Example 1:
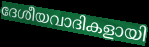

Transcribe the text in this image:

ദേശീയവാദികളായി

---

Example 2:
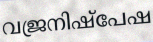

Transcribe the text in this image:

വജ്രനിഷ്പേഷ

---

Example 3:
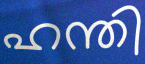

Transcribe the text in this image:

ഹന്തി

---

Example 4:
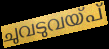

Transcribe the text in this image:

ചുവടുവയ്പ്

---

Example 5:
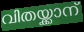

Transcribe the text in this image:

വിതയ്ക്കാന്